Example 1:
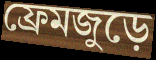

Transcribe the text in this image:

ফ্রেমজুড়ে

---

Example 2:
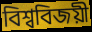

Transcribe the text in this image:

বিশ্ববিজয়ী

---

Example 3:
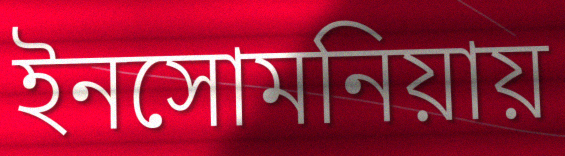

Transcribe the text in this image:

ইনসোমনিয়ায়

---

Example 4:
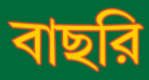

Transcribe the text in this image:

বাছরি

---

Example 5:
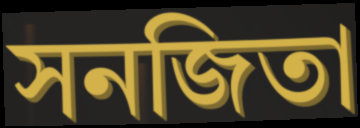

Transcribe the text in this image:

সনজিতা